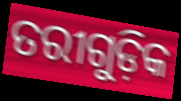
ତରୀଗୁଡ଼ିକ